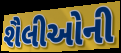
શૈલીઓની